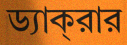
ড্যাক্‌রার